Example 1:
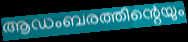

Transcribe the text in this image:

ആഡംബരത്തിന്റെയും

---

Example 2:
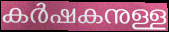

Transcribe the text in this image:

കർഷകനുള്ള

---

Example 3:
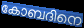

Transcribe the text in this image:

കോബദിനെ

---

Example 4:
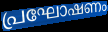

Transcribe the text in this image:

പ്രഘോഷണം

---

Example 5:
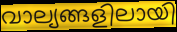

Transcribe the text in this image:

വാല്യങ്ങളിലായി